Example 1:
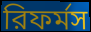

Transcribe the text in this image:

রিফর্মস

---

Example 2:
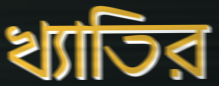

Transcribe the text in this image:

খ্যাতির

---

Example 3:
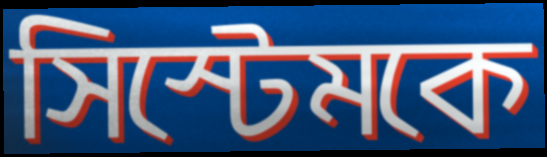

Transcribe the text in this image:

সিস্টেমকে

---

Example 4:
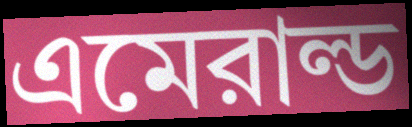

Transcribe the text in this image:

এমেরাল্ড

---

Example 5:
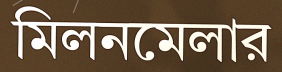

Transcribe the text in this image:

মিলনমেলার